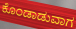
ಕೊಂಡಾಡುವಾಗ